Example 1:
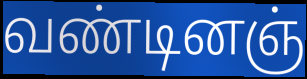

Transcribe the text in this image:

வண்டினஞ்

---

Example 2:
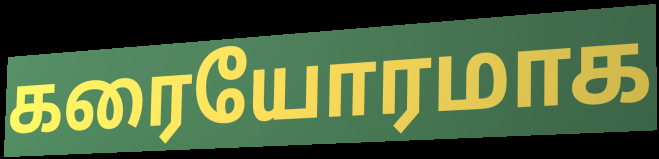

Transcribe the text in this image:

கரையோரமாக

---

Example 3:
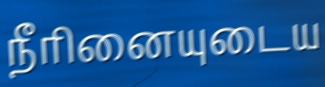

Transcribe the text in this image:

நீரினையுடைய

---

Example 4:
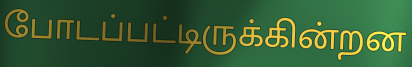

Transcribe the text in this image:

போடப்பட்டிருக்கின்றன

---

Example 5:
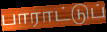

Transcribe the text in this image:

பாராட்டுப்